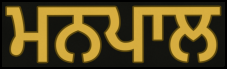
ਮਨਪਾਲ